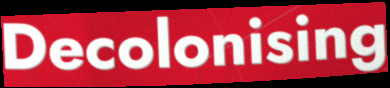
Decolonising